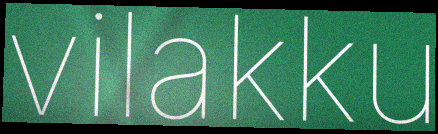
vilakku